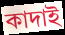
কাদাই